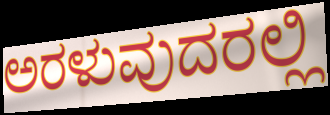
ಅರಳುವುದರಲ್ಲಿ